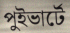
পুইভার্টে